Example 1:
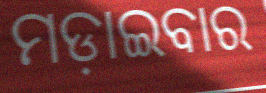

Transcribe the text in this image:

ମଡ଼ାଇବାର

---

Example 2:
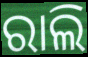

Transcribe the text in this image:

ରାଲି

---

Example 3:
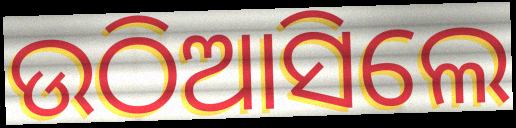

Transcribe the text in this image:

ଉଠିଆସିଲେ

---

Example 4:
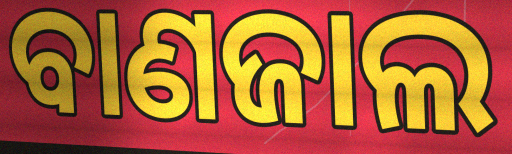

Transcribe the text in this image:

ବାଣଜାଲ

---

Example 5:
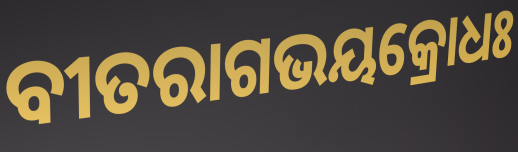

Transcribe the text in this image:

ବୀତରାଗଭୟକ୍ରୋଧଃ